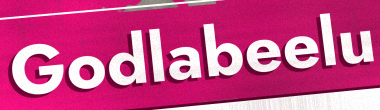
Godlabeelu